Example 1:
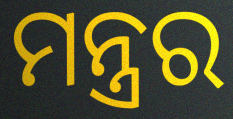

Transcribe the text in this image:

ମନ୍ତ୍ରର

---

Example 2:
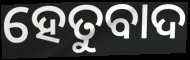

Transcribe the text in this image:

ହେତୁବାଦ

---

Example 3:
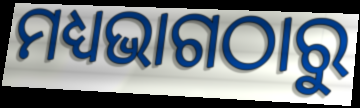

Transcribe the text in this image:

ମଧ୍ୟଭାଗଠାରୁ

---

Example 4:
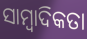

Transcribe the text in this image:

ସାମ୍ୱାଦିକତା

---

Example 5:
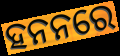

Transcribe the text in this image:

ହନନରେ